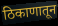
ठिकाणातून